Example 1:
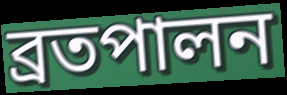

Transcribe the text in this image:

ব্রতপালন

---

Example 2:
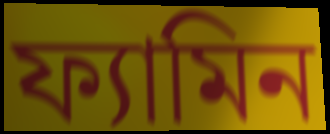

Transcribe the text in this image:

ফ্যামিন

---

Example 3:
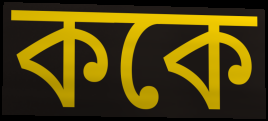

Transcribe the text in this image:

ককে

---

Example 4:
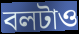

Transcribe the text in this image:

বলটাও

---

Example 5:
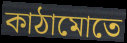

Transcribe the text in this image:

কাঠামোতে